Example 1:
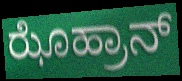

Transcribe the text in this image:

ಝೊಹ್ರಾನ್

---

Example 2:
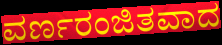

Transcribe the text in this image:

ವರ್ಣರಂಜಿತವಾದ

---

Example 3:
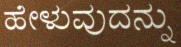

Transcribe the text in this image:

ಹೇಳುವುದನ್ನು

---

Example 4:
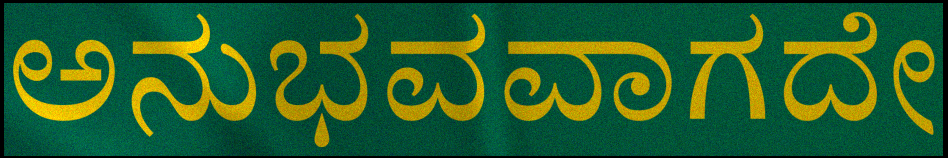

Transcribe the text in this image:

ಅನುಭವವಾಗದೇ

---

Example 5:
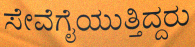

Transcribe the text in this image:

ಸೇವೆಗೈಯುತ್ತಿದ್ದರು